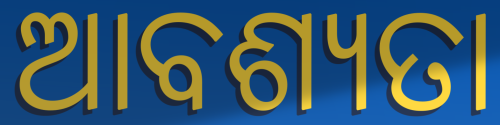
ଆବଶ୍ୟତା